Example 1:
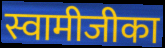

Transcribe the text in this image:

स्वामीजीका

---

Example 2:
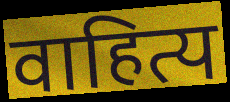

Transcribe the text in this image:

वाहित्य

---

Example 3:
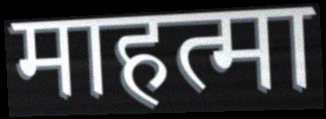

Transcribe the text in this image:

माहत्मा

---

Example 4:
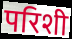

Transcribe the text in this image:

परिशी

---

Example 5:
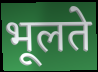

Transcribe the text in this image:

भूलते